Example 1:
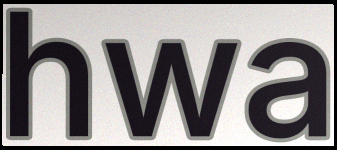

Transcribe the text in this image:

hwa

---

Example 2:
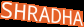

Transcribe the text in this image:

SHRADHA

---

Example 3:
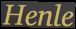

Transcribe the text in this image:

Henle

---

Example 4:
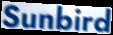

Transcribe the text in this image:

Sunbird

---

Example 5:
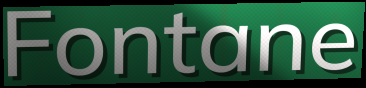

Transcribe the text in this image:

Fontane